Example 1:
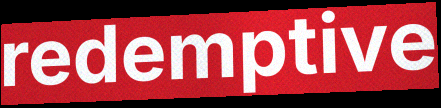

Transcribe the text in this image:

redemptive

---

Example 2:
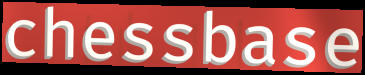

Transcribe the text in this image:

chessbase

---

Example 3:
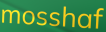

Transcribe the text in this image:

mosshaf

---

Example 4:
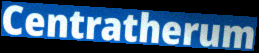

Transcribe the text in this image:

Centratherum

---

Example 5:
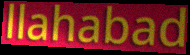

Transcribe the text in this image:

llahabad